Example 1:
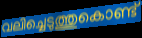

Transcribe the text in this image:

വലിച്ചെടുത്തുകൊണ്ട്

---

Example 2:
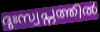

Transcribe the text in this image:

ദുഃസ്വപ്നത്തിൽ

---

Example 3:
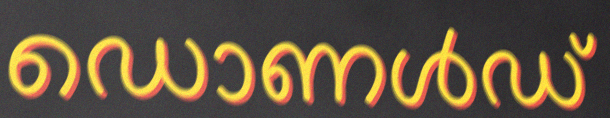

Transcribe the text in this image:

ഡൊണൾഡ്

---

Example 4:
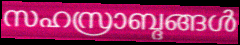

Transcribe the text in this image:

സഹസ്രാബ്ദങ്ങൾ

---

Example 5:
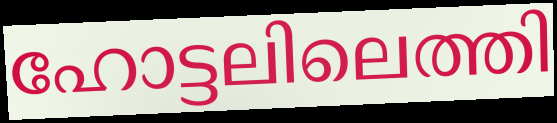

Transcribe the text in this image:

ഹോട്ടലിലെത്തി